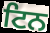
ਟਿਨ